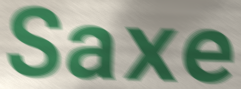
Saxe